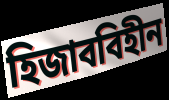
হিজাববিহীন